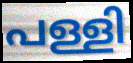
പള്ളി